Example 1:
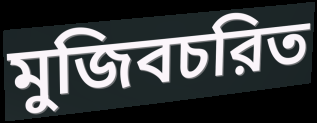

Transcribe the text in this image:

মুজিবচরিত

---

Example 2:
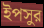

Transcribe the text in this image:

ইপসুর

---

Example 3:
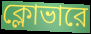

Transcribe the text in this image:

ক্লোভারে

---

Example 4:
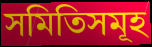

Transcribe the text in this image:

সমিতিসমূহ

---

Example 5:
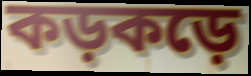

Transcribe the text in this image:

কড়কড়ে